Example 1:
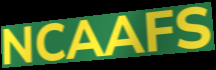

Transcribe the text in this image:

NCAAFS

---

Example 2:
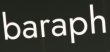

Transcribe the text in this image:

baraph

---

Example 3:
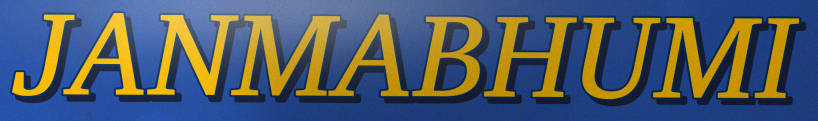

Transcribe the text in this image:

JANMABHUMI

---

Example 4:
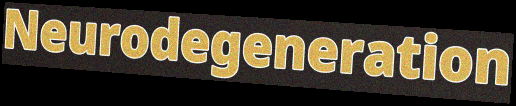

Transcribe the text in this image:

Neurodegeneration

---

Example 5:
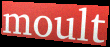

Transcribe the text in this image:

moult